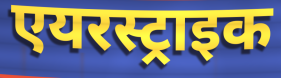
एयरस्ट्राइक